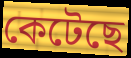
কেটেছে